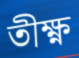
তীক্ষ্ণ